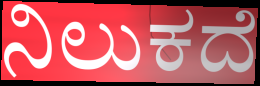
ನಿಲುಕದೆ